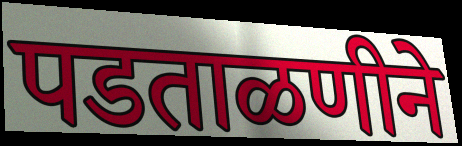
पडताळणीने